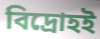
বিদ্রোহই